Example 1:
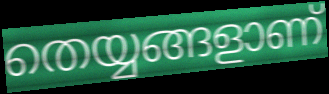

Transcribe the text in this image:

തെയ്യങ്ങളാണ്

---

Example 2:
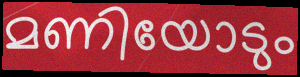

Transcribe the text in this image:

മണിയോടും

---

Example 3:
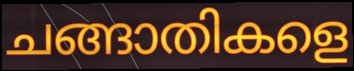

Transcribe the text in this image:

ചങ്ങാതികളെ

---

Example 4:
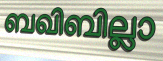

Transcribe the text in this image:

ബഖിബില്ലാ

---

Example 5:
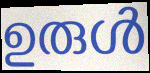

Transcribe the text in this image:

ഉരുൾ